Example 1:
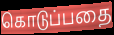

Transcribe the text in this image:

கொடுப்பதை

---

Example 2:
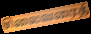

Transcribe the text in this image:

சிலைவரைத்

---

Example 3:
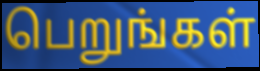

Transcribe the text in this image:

பெறுங்கள்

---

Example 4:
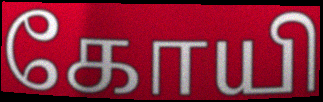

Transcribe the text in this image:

கோயி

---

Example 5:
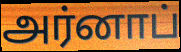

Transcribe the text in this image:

அர்னாப்